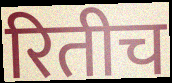
रितीच